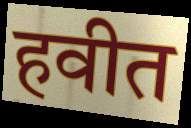
हवीत